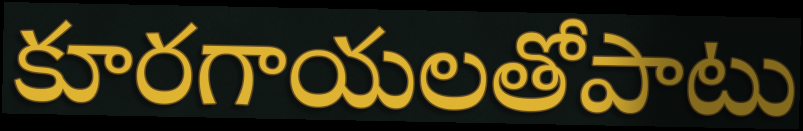
కూరగాయలతోపాటు